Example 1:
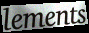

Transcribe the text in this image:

lements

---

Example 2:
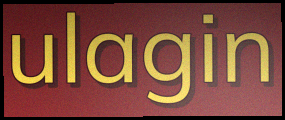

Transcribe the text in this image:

ulagin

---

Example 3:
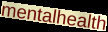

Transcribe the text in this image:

mentalhealth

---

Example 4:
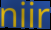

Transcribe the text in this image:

niir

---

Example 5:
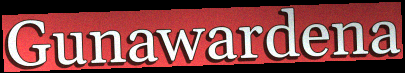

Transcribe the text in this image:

Gunawardena